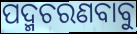
ପଦ୍ମଚରଣବାବୁ